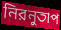
নিরনুতাপ